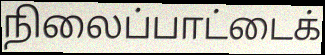
நிலைப்பாட்டைக்